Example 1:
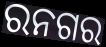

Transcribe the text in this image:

ରନଗର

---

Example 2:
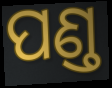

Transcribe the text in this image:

ପଣ୍ଡ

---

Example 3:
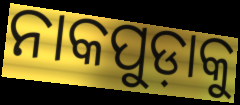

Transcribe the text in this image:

ନାକପୁଡ଼ାକୁ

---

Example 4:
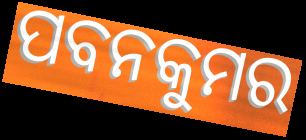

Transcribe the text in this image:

ପବନକୁମର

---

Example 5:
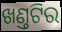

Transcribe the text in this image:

ଖଣ୍ତଟିର